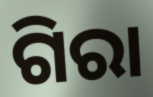
ଗିରା